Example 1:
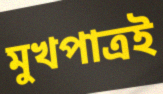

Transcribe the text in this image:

মুখপাত্রই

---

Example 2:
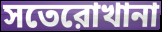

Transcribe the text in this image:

সতেরোখানা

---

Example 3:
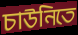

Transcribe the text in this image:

চাউনিতে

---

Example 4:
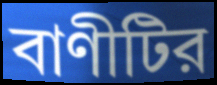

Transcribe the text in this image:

বাণীটির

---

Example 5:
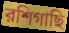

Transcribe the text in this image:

রশিগাছি